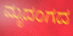
ಮೃದಂಗದ